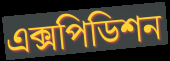
এক্সপিডিশন